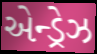
એન્ડ્રેઝ